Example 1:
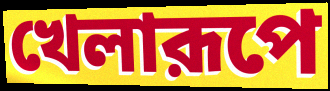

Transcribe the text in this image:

খেলারূপে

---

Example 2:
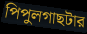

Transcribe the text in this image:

পিপুলগাছটার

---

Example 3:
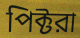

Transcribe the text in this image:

পিক্টরা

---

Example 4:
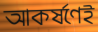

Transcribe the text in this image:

আকর্ষণেই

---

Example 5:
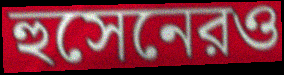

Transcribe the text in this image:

হুসেনেরও